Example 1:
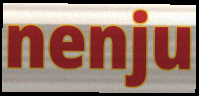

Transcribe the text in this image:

nenju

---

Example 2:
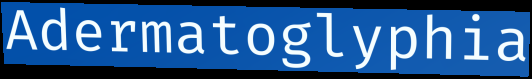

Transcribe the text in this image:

Adermatoglyphia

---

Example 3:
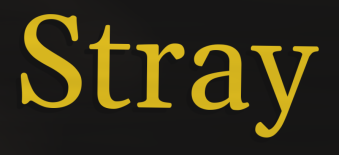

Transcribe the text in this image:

Stray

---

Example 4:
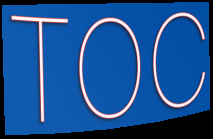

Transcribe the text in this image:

TOC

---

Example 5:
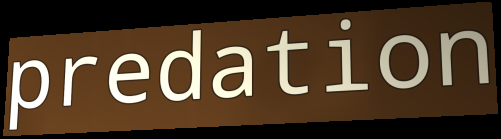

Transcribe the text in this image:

predation